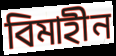
বিমাহীন